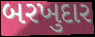
બરખુદાર